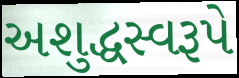
અશુદ્ધસ્વરૂપે